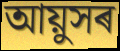
আয়ুসৰ